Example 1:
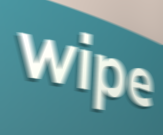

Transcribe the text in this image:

wipe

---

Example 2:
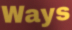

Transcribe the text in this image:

Ways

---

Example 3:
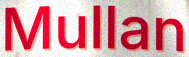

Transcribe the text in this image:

Mullan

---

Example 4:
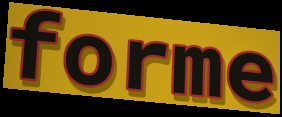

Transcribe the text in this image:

forme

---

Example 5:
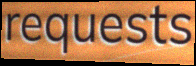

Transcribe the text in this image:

requests